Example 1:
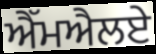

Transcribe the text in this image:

ਐੱਮਐਲਏ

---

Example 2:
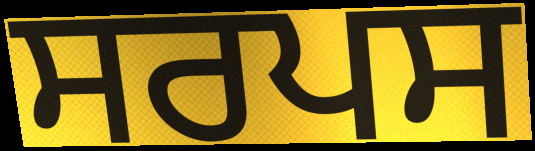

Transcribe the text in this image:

ਸਰਪਸ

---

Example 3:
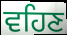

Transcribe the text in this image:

ਵਹਿਣ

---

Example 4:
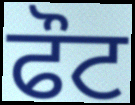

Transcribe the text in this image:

ਫੌਟ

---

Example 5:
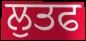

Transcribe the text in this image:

ਲੁਤਫ